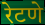
रेटणे